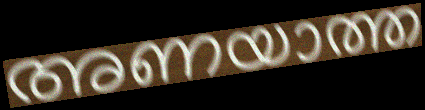
അണയാത്ത